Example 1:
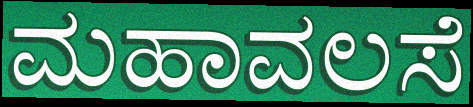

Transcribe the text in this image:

ಮಹಾವಲಸೆ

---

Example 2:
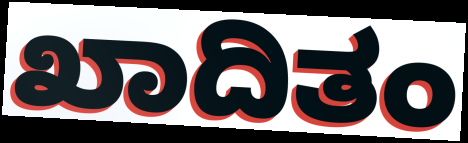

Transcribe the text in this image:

ಖಾದಿತಂ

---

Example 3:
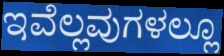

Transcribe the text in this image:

ಇವೆಲ್ಲವುಗಳಲ್ಲೂ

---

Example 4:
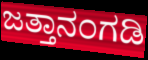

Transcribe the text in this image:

ಜತ್ತಾನಂಗಡಿ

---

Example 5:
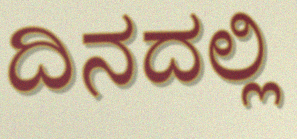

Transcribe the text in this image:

ದಿನದಲ್ಲಿ